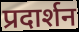
प्रदार्शन